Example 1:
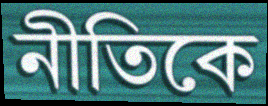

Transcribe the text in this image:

নীতিকে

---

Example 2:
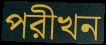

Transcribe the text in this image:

পরীখন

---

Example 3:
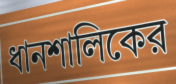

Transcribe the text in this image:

ধানশালিকের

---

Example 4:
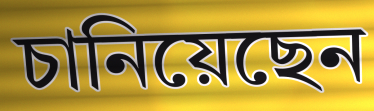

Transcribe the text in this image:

চানিয়েছেন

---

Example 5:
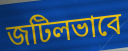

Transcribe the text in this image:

জটিলভাবে